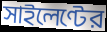
সাইলেণ্টের